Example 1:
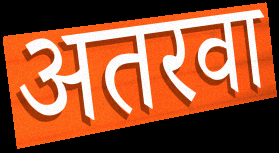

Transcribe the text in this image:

अतरवा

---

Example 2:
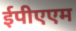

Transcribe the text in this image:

ईपीएएम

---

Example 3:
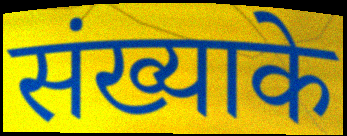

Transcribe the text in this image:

संख्याके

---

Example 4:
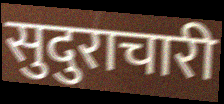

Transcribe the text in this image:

सुदुराचारी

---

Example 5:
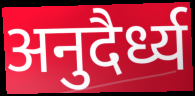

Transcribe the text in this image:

अनुदैर्ध्य